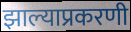
झाल्याप्रकरणी